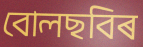
বোলছবিৰ